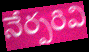
నేర్పరివి